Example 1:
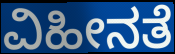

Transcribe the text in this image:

ವಿಹೀನತೆ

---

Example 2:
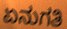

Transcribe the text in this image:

ಏನುಗತಿ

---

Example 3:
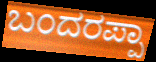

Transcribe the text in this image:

ಬಂದರಪ್ಪಾ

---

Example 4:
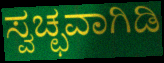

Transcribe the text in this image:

ಸ್ವಚ್ಛವಾಗಿಡಿ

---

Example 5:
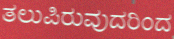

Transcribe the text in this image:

ತಲುಪಿರುವುದರಿಂದ